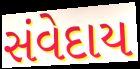
સંવેદાય